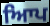
ਆਿਪ